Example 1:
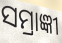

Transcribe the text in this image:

ସମ୍ରାଜ୍ଞୀ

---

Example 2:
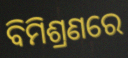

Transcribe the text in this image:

ବିମିଶ୍ରଣରେ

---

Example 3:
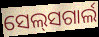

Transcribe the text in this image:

ସେଲ୍‍ସଗାର୍ଲ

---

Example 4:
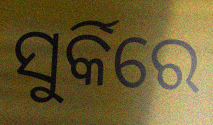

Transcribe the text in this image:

ସୁର୍କିରେ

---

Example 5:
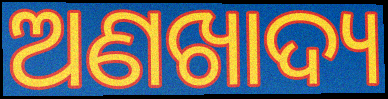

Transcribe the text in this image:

ଅଣଖାଦ୍ୟ